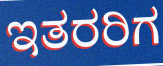
ಇತರರಿಗ